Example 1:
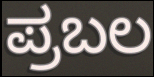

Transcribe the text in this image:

ಪ್ರಬಲ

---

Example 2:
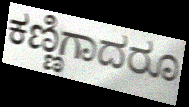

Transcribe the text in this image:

ಕಣ್ಣಿಗಾದರೂ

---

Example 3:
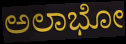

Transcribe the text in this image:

ಅಲಾಭೋ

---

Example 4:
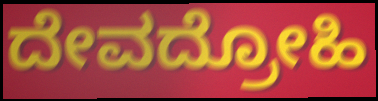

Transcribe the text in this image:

ದೇವದ್ರೋಹಿ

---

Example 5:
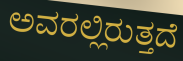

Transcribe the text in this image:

ಅವರಲ್ಲಿರುತ್ತದೆ